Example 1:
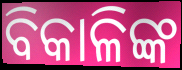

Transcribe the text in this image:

ବିକାଳିଙ୍କ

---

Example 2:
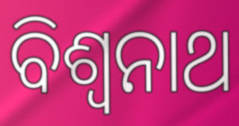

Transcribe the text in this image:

ବିଶ୍ୱନାଥ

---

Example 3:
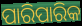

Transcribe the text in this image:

ପାରିପାରିକ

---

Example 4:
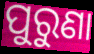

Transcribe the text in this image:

ପୁରୁଣା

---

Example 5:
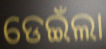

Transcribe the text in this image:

ଡେଇଁଲା